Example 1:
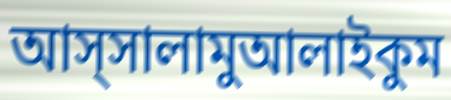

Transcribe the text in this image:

আস্সালামুআলাইকুম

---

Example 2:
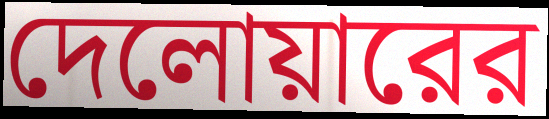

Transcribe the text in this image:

দেলোয়ারের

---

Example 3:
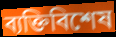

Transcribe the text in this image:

ব্যক্তিবিশেষ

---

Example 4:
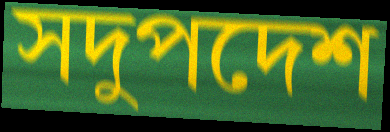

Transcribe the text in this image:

সদুপদেশ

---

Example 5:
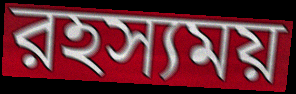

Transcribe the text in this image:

রহস্যময়